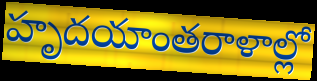
హృదయాంతరాళాల్లో